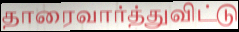
தாரைவார்த்துவிட்டு